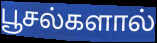
பூசல்களால்